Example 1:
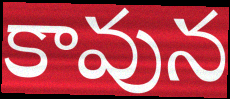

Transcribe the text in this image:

కావున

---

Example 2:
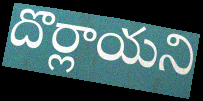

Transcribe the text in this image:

దొర్లాయని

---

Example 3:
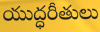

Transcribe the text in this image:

యుద్ధరీతులు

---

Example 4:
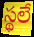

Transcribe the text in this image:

స్థలే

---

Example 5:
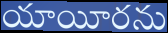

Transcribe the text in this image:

యాయీరను